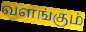
வளங்கும்